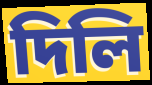
দিলি